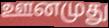
ஊனமுது